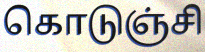
கொடுஞ்சி